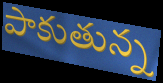
పాకుతున్న